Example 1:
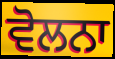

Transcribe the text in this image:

ਵੋਲਨਾ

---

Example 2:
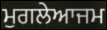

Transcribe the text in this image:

ਮੁਗਲੇਆਜਮ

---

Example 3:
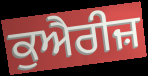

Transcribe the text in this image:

ਕੁਐਰੀਜ਼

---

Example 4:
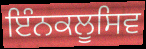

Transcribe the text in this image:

ਇੰਨਕਲੂਸਿਵ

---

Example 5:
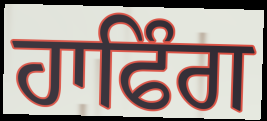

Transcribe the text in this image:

ਹਾਫਿੰਗ